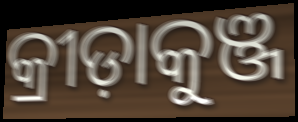
କ୍ରୀଡ଼ାକୁଞ୍ଜ